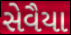
સેવૈયા